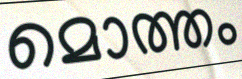
മൊത്തം